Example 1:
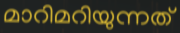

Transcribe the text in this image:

മാറിമറിയുന്നത്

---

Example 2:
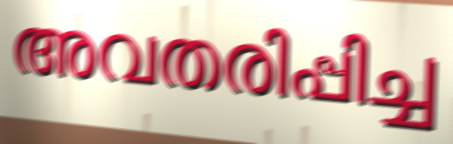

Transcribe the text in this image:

അവതരിപ്പിച്ച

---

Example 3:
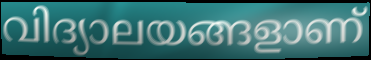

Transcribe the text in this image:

വിദ്യാലയങ്ങളാണ്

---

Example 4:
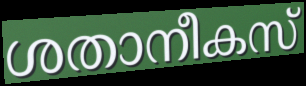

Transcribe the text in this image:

ശതാനീകസ്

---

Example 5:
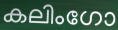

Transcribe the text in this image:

കലിംഗോ